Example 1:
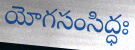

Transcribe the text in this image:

యోగసంసిద్ధః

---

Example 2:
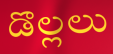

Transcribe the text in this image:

డొల్లలు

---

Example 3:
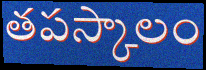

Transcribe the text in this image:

తపస్కాలం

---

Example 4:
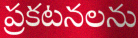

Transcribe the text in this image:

ప్రకటనలను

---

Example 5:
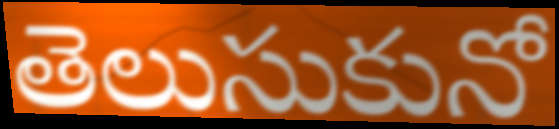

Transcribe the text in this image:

తెలుసుకునో